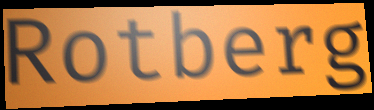
Rotberg